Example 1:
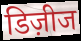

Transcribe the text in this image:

डिज़ीज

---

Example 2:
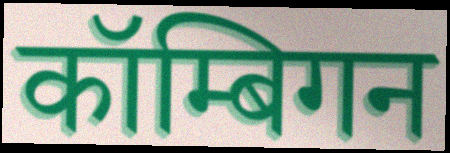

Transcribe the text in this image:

कॉम्बिगन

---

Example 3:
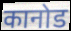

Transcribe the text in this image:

कानोड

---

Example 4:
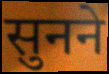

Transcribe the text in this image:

सुनने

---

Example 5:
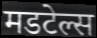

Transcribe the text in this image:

मडटेल्स